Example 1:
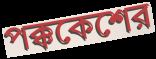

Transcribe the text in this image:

পক্ককেশের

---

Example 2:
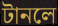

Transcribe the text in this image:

টানলে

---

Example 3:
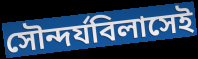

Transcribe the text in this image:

সৌন্দর্যবিলাসেই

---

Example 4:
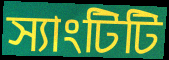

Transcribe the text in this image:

স্যাংটিটি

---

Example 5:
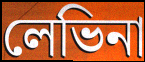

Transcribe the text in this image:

লেভিনা